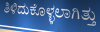
ತಿಳಿದುಕೊಳ್ಳಲಾಗಿತ್ತು